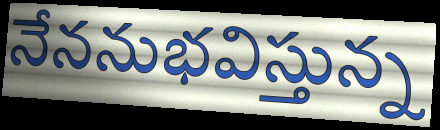
నేననుభవిస్తున్న